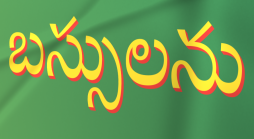
బస్సులను